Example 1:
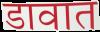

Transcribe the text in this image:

डावात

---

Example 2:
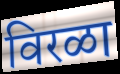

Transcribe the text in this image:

विरळा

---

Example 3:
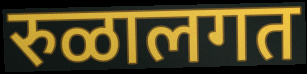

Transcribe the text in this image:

रुळालगत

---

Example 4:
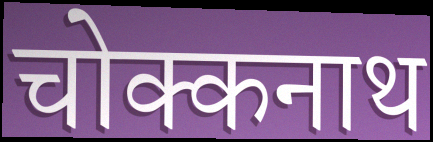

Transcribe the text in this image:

चोक्कनाथ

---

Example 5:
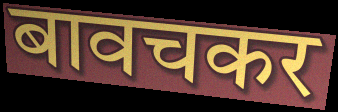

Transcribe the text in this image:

बावचकर